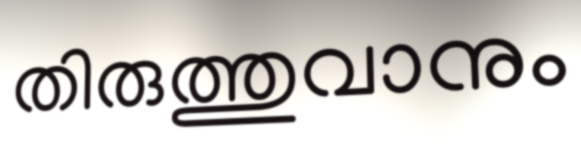
തിരുത്തുവാനും